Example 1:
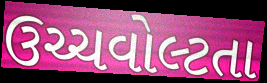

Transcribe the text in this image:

ઉચ્ચવોલ્ટતા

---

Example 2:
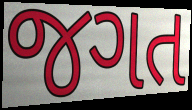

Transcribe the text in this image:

જગત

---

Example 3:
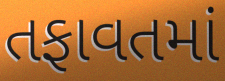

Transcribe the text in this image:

તફાવતમાં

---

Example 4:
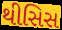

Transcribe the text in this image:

થીસિસ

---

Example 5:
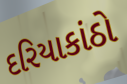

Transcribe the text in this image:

દરિયાકાંઠો